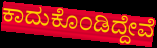
ಕಾದುಕೊಂಡಿದ್ದೇವೆ